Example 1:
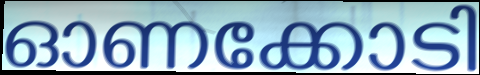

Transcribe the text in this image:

ഓണക്കോടി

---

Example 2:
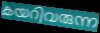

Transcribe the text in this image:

കയറിവരുന്ന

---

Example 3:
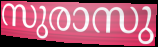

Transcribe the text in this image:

സുരാസു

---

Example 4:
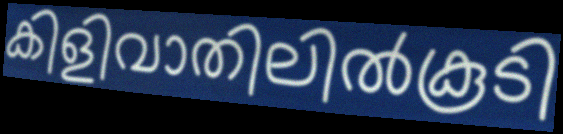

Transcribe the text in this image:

കിളിവാതിലിൽകൂടി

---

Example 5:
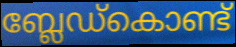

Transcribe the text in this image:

ബ്ലേഡ്കൊണ്ട്